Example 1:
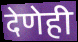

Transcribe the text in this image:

देणेही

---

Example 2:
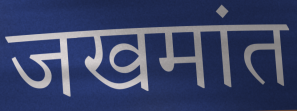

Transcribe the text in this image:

जखमांत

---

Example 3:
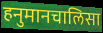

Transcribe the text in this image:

हनुमानचालिसा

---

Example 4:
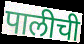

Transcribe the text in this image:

पालीची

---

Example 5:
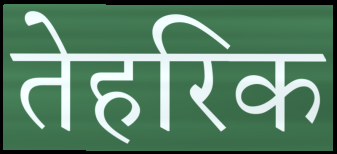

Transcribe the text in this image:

तेहरिक